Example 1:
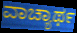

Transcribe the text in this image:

ವಾಚ್ಯಾರ್ಥ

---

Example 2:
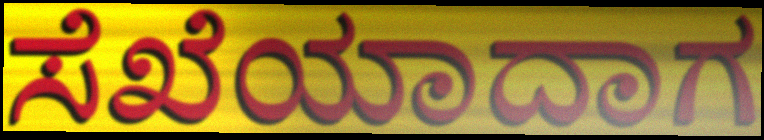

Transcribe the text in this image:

ಸೆಖೆಯಾದಾಗ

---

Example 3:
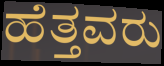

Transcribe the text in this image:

ಹೆತ್ತವರು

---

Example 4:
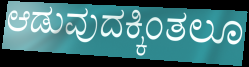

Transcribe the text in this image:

ಆಡುವುದಕ್ಕಿಂತಲೂ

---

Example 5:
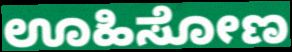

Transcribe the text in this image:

ಊಹಿಸೋಣ